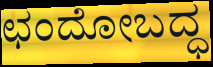
ಛಂದೋಬದ್ಧ